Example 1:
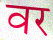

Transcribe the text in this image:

वर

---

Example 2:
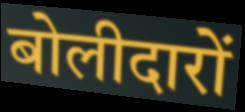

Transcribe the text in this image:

बोलीदारों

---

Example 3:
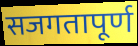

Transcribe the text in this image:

सजगतापूर्ण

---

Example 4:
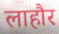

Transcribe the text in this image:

लाहौर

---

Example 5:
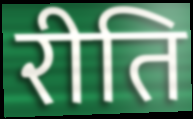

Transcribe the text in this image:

रीति